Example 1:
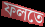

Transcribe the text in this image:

ফলতে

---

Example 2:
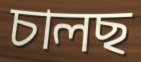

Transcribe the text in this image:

চালছ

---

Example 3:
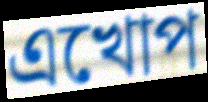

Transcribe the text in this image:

এখোপ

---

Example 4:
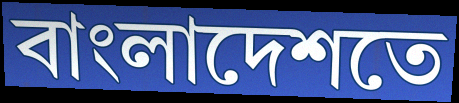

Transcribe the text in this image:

বাংলাদেশতে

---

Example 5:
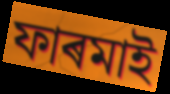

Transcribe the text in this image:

ফাৰমাই